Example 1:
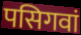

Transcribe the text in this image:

पसिगवां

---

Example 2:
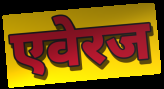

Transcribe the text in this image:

एवेरज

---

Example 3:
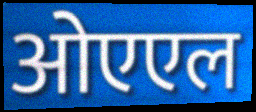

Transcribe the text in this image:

ओएएल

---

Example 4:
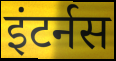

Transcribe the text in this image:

इंटर्नस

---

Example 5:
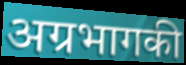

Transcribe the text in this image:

अग्रभागकी